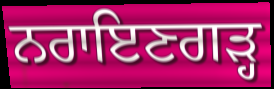
ਨਰਾਇਣਗੜ੍ਹ